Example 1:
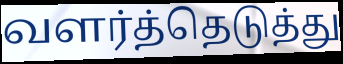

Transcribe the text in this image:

வளர்த்தெடுத்து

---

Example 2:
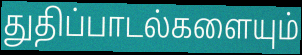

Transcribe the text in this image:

துதிப்பாடல்களையும்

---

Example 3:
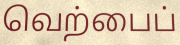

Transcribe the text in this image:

வெற்பைப்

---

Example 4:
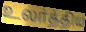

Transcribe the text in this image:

உலர்த்திய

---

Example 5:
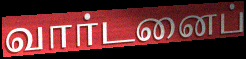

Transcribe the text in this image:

வார்டனைப்